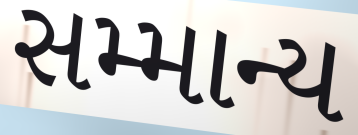
સમ્માન્ય